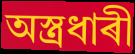
অস্ত্ৰধাৰী